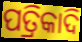
ପତ୍ରିକାଦି